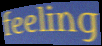
feeling